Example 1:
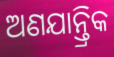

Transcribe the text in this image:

ଅଣଯାନ୍ତ୍ରିକ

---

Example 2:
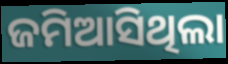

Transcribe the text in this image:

ଜମିଆସିଥିଲା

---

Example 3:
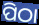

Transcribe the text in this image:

ପିଠା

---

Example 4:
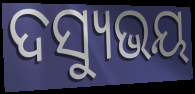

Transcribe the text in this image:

ଦସ୍ୟୁଭୟ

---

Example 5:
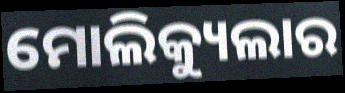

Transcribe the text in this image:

ମୋଲିକ୍ୟୁଲାର